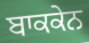
ਬਾਕਕੇਨ